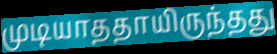
முடியாததாயிருந்தது